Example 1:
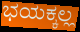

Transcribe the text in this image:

ಭಯಕ್ಕಲ್ಲ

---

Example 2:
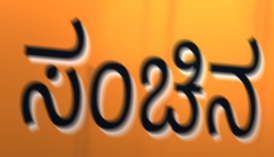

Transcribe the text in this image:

ಸಂಚಿನ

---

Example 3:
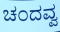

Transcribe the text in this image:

ಚಂದವ್ವ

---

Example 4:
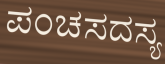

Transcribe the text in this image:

ಪಂಚಸದಸ್ಯ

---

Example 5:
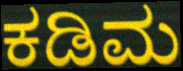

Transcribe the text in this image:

ಕಡಿಮ